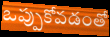
ఒప్పుకోవడంతో